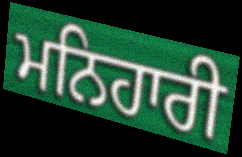
ਮਨਿਹਾਰੀ